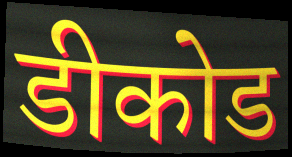
डीकोड